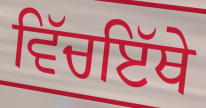
ਵਿੱਚਇੱਥੇ